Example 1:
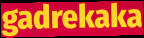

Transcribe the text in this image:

gadrekaka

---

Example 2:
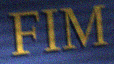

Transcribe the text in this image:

FIM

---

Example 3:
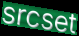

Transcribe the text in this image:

srcset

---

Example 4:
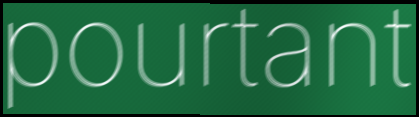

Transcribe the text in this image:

pourtant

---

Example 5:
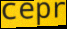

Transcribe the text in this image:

cepr